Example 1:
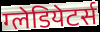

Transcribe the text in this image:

ग्लेडियेटर्स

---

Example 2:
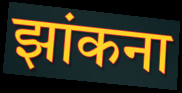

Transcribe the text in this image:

झांकना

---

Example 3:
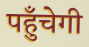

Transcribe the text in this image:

पहुँचेगी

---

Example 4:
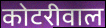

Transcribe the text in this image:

कोटरीवाल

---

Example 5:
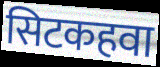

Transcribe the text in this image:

सिटकहवा